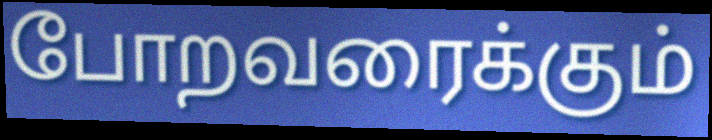
போறவரைக்கும்